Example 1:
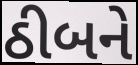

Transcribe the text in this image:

ઠીબને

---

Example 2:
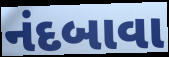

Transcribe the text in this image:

નંદબાવા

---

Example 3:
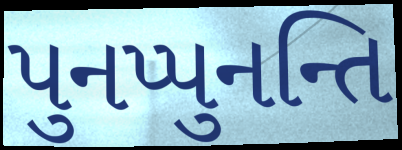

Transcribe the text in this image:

પુનપ્પુનન્તિ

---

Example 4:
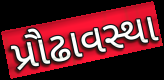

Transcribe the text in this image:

પ્રૌઢાવસ્થા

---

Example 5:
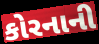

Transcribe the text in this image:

કોરનાની